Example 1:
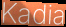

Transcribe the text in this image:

Kadia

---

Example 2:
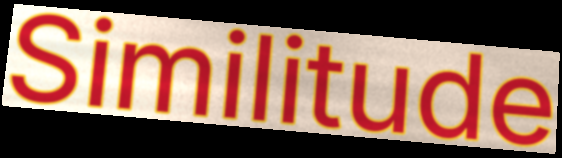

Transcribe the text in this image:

Similitude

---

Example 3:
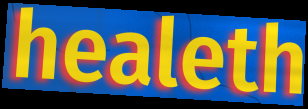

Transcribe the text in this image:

healeth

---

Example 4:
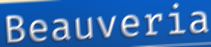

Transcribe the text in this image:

Beauveria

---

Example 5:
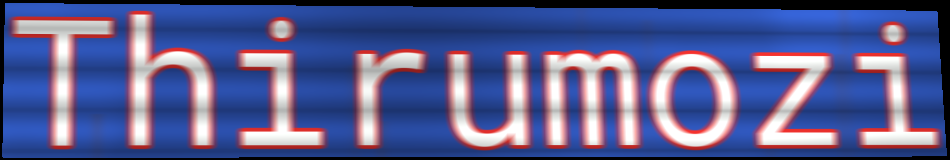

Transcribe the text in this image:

Thirumozi